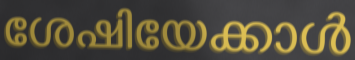
ശേഷിയേക്കാൾ